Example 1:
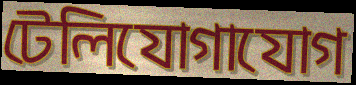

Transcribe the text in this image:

টেলিযোগাযোগ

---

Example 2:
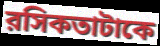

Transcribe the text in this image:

রসিকতাটাকে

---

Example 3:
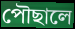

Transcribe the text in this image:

পৌছালে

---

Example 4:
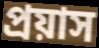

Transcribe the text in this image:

প্রয়াস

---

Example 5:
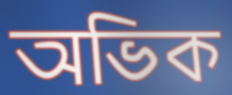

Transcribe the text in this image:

অভিক